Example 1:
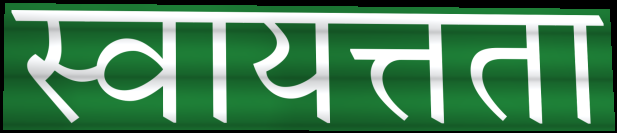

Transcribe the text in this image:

स्वायत्तता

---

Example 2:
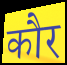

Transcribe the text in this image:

कौर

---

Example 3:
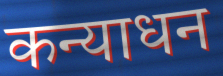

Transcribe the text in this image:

कन्याधन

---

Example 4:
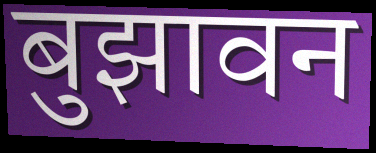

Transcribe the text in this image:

बुझावन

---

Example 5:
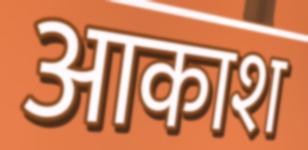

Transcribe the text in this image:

आकाश